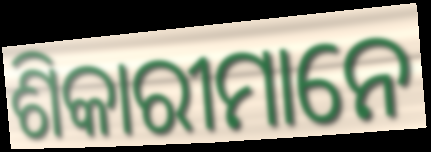
ଶିକାରୀମାନେ